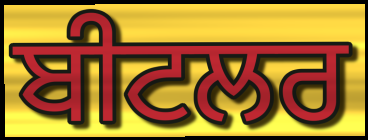
ਬੀਟਲਰ